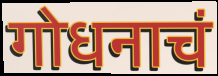
गोधनाचं